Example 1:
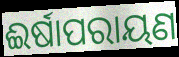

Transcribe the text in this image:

ଈର୍ଷାପରାୟଣ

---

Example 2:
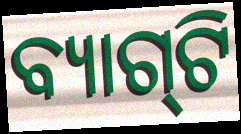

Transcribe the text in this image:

ବ୍ୟାଗ୍‌ଟି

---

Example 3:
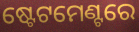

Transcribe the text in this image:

ଷ୍ଟେଟମେଣ୍ଟରେ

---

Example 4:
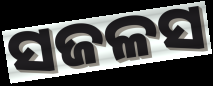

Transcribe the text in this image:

ସଜଳସ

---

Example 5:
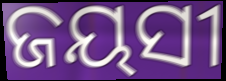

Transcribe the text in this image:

ଜୟସୀ